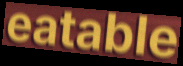
eatable